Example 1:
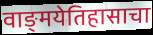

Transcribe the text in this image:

वाङ्मयेतिहासाचा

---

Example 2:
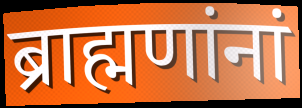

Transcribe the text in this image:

ब्राह्मणांनां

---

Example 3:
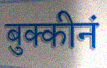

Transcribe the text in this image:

बुक्कीनं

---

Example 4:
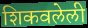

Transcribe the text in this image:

शिकवलेली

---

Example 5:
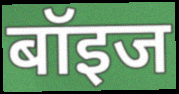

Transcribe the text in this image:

बॉइज